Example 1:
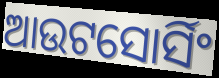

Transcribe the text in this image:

ଆଉଟସୋର୍ସିଂ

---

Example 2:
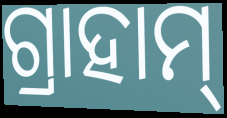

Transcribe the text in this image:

ଗ୍ରାହାମ୍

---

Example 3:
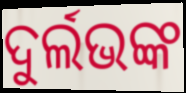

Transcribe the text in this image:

ଦୁର୍ଲଭଙ୍କ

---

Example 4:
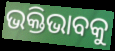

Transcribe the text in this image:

ଭକ୍ତିଭାବକୁ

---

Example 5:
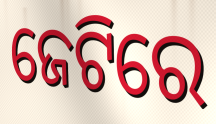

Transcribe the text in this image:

ଜେଟିରେ